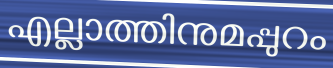
എല്ലാത്തിനുമപ്പുറം